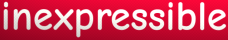
inexpressible